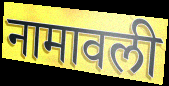
नामावली